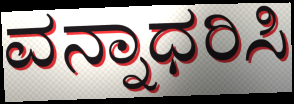
ವನ್ನಾಧರಿಸಿ